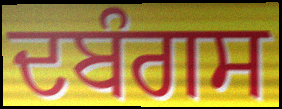
ਦਬੰਗਸ